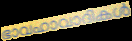
ഭാവഹാവാദികൾ